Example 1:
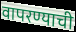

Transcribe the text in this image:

वापरण्याची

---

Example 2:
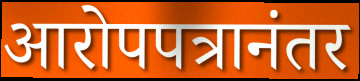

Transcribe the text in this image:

आरोपपत्रानंतर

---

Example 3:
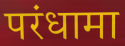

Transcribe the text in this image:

परंधामा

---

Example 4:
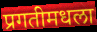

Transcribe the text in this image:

प्रगतीमधला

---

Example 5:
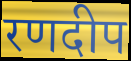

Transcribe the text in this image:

रणदीप